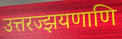
उत्तरज्झयणाणि